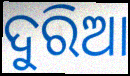
ଦୁରିଆ